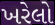
ખરેલો